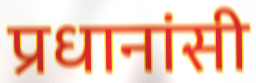
प्रधानांसी